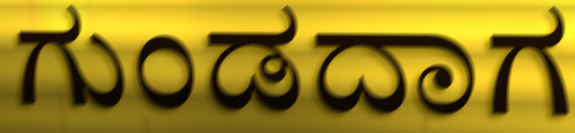
ಗುಂಡದಾಗ